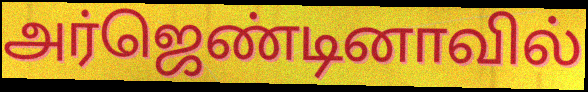
அர்ஜெண்டினாவில்